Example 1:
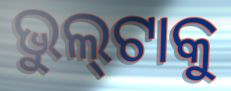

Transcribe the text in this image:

ଭୁଲ୍‍ଟାକୁ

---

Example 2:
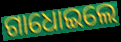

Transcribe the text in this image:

ଗାଧୋଇଲେ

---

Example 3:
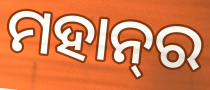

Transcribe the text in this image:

ମହାନ୍‌ର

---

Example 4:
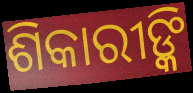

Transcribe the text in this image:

ଶିକାରୀଙ୍କି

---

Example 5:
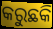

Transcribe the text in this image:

କରୁଛକି